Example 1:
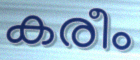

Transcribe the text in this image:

കരീം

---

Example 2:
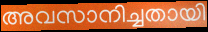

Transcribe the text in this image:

അവസാനിച്ചതായി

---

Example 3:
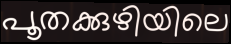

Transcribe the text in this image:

പൂതക്കുഴിയിലെ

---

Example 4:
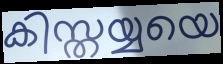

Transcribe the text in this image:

കിസ്തയ്യയെ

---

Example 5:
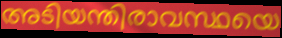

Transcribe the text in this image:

അടിയന്തിരാവസ്ഥയെ